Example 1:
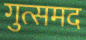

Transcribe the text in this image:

गुत्समद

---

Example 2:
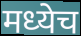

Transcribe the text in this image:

मध्‍येच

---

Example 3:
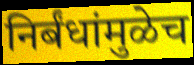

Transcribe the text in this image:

निर्बंधांमुळेच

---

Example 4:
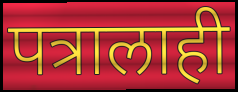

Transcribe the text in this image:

पत्रालाही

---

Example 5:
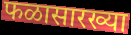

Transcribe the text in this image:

फळासारख्या